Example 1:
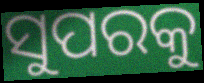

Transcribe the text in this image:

ସୁପରକୁ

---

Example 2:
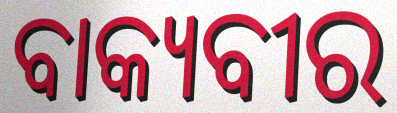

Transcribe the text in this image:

ବାକ୍ୟବୀର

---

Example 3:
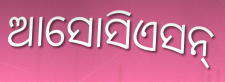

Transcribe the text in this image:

ଆସୋସିଏସନ୍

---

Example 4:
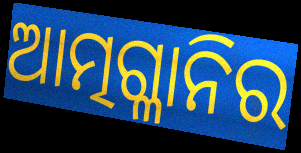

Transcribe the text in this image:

ଆତ୍ମଗ୍ଳାନିର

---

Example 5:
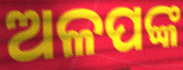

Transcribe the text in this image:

ଅଳପଙ୍କ